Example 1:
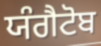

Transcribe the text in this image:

ਯੰਗੈਟੋਬ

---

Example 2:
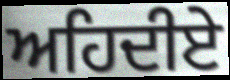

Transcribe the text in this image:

ਅਹਿਦੀਏ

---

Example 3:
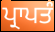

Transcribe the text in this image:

ਪ੍ਰਾਪਤੰ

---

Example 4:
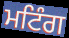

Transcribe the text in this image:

ਮਟਿੰਗ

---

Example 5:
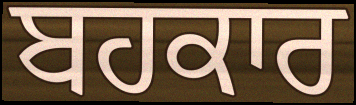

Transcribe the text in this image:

ਬਹਕਾਰ